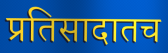
प्रतिसादातच